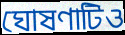
ঘোষণাটিও